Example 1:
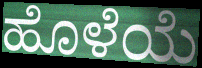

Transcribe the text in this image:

ಹೊಳೆಯೆ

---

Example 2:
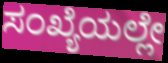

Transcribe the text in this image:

ಸಂಖ್ಯೆಯಲ್ಲೇ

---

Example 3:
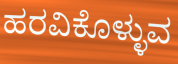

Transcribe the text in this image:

ಹರವಿಕೊಳ್ಳುವ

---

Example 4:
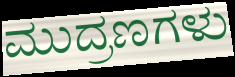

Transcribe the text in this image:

ಮುದ್ರಣಗಳು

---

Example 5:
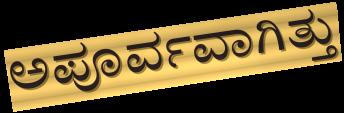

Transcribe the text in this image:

ಅಪೂರ್ವವಾಗಿತ್ತು